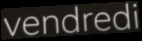
vendredi